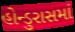
હોન્ડુરાસમાં